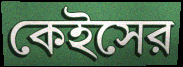
কেইসের